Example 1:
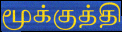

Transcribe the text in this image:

மூக்குத்தி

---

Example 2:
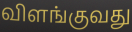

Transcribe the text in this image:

விளங்குவது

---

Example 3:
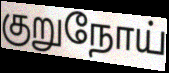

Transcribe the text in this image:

குறுநோய்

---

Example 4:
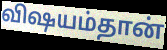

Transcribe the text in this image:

விஷயம்தான்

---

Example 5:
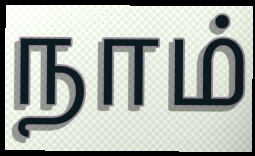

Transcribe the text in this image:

நாம்